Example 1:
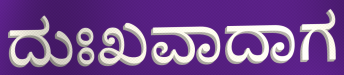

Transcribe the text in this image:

ದುಃಖವಾದಾಗ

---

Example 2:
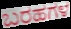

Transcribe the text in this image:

ಬರಹಗಳ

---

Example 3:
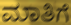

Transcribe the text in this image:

ಮಾತಿಗೆ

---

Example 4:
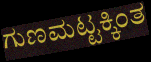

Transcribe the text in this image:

ಗುಣಮಟ್ಟಕ್ಕಿಂತ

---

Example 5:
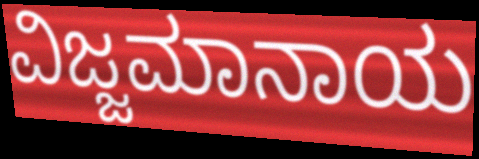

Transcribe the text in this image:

ವಿಜ್ಜಮಾನಾಯ